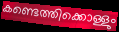
കണ്ടെത്തിക്കൊള്ളും